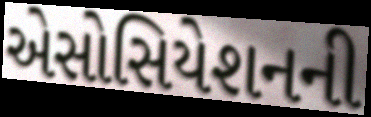
એસોસિયેશનની